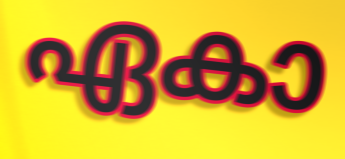
ഏകാ